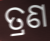
ତ୍ରଣ